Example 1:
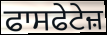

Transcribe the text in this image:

ਫਾਸਫੇਟੇਜ਼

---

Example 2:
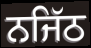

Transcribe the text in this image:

ਨਜਿੱਠ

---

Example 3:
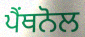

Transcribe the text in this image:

ਪੈਂਥਨੋਲ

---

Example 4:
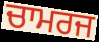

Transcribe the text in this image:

ਚਾਮਰਜ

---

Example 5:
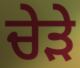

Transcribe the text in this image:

ਚੇੜੇ